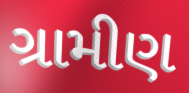
ગ્રામીણ